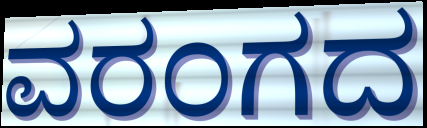
ವರಂಗದ